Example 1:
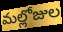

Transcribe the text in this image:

మల్లోజుల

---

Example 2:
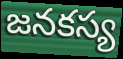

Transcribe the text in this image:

జనకస్య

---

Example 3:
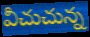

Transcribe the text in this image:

వీచుచున్న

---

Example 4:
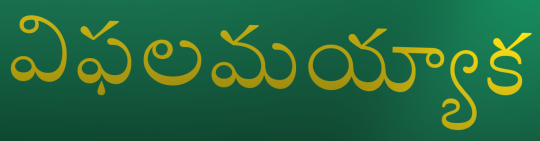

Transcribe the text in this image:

విఫలమయ్యాక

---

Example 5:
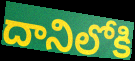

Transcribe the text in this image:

దానిలోకి